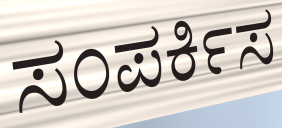
ಸಂಪರ್ಕಿಸ